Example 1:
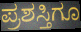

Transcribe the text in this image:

ಪ್ರಶಸ್ತಿಗೂ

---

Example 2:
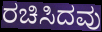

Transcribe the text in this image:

ರಚಿಸಿದವು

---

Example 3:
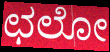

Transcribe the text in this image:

ಛಲೋ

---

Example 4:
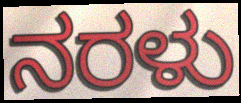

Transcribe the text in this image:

ನರಳು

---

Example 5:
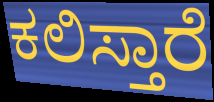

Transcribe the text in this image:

ಕಲಿಸ್ತಾರೆ